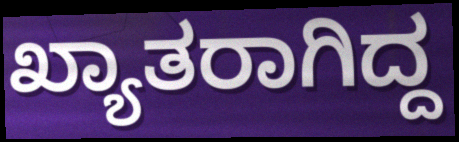
ಖ್ಯಾತರಾಗಿದ್ದ